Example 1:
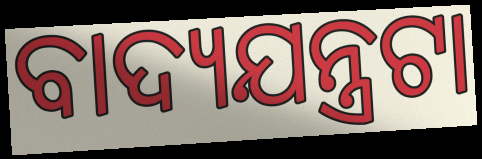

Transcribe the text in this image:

ବାଦ୍ୟଯନ୍ତ୍ରଟା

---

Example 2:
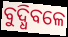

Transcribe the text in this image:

ବୁଦ୍ଧିବଳେ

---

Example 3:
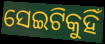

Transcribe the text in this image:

ସେଇଟିକୁହିଁ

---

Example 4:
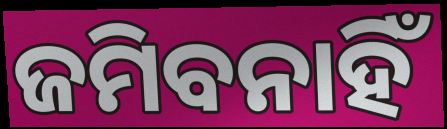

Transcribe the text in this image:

ଜମିବନାହିଁ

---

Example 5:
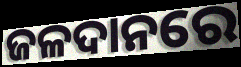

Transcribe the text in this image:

ଜଳଦାନରେ